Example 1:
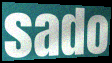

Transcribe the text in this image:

sado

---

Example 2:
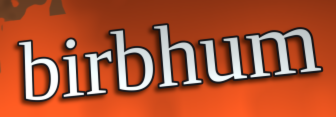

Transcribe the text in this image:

birbhum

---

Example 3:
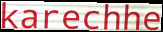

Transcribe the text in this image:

karechhe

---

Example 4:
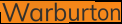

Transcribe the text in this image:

Warburton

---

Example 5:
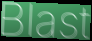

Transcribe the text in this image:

Blast